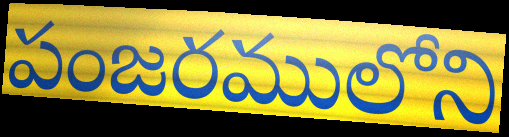
పంజరములోని